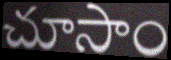
చూసాం